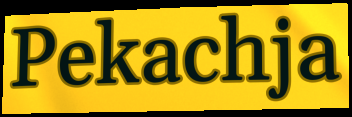
Pekachja